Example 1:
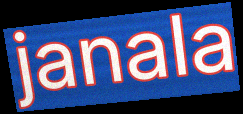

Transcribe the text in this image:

janala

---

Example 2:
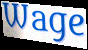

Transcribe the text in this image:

Wage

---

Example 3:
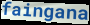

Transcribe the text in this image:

faingana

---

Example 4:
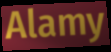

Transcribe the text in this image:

Alamy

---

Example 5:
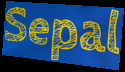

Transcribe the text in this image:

Sepal